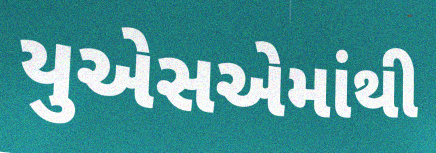
યુએસએમાંથી